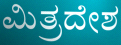
ಮಿತ್ರದೇಶ